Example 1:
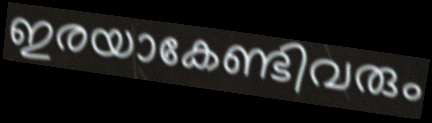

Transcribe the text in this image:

ഇരയാകേണ്ടിവരും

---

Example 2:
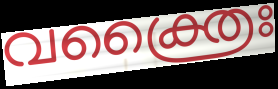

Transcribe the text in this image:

വക്ത്രൈഃ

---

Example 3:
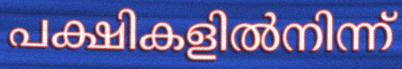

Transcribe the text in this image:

പക്ഷികളിൽനിന്ന്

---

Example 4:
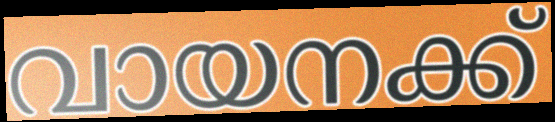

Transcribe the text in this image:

വായനക്ക്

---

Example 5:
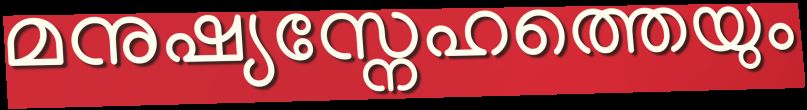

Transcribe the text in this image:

മനുഷ്യസ്നേഹത്തെയും